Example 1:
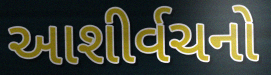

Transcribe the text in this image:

આશીર્વચનો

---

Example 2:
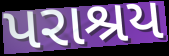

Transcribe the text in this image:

પરાશ્રય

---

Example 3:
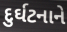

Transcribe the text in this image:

દુર્ઘટનાને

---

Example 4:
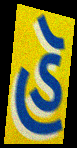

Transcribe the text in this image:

હૅ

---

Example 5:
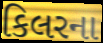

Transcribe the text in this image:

કિલરના